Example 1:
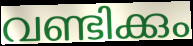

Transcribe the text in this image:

വണ്ടിക്കും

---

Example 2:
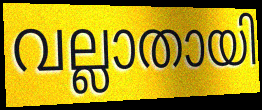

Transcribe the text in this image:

വല്ലാതായി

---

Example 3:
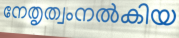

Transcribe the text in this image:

നേതൃത്വംനൽകിയ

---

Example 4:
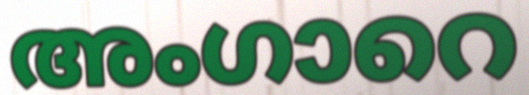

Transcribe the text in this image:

അംഗാറെ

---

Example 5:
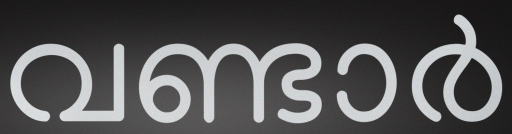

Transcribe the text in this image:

വണ്ടാർ